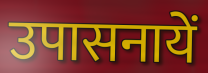
उपासनायें